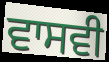
ਵਾਸਵੀ